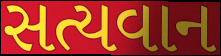
સત્યવાન